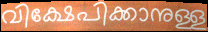
വിക്ഷേപിക്കാനുള്ള